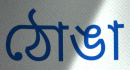
ঠোঙা